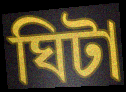
ঘিটা